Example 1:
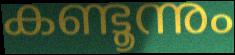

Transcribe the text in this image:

കണ്ടൂന്നും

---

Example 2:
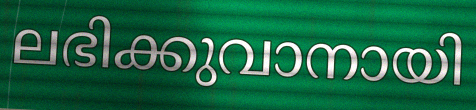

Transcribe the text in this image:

ലഭിക്കുവാനായി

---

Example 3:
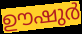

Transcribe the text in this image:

ഊഷുർ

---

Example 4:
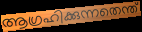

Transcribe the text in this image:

ആഗ്രഹിക്കുന്നതെന്ത്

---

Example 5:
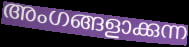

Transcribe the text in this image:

അംഗങ്ങളാക്കുന്ന